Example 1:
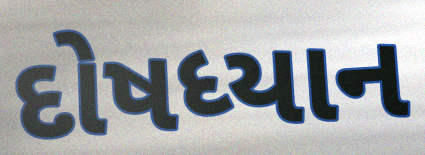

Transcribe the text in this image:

દોષધ્યાન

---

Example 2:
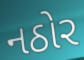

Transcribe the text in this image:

નઠોર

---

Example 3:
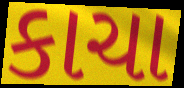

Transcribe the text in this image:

કાચા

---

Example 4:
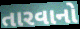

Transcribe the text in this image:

તારવાનો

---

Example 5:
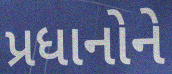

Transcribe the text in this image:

પ્રધાનોને